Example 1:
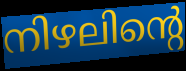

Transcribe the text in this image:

നിഴലിന്റെ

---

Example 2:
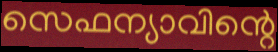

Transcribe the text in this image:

സെഫന്യാവിന്റെ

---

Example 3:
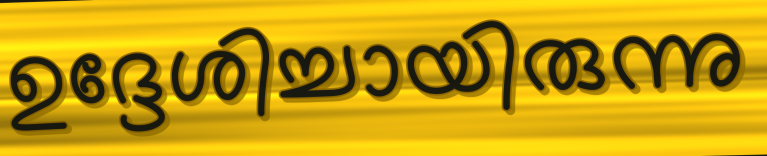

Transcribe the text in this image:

ഉദ്ദേശിച്ചായിരുന്നു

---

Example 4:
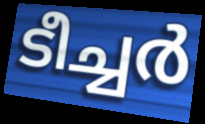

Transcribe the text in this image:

ടീച്ചർ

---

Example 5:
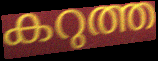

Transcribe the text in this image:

കറുത്ത